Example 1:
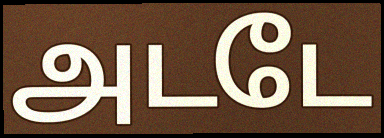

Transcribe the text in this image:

அடடே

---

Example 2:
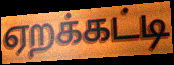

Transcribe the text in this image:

ஏறக்கட்டி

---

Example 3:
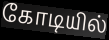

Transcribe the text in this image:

கோடியில்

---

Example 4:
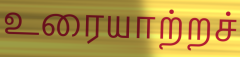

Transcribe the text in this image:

உரையாற்றச்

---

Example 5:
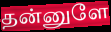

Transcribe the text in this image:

தன்னுளே